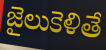
జైలుకెళితే